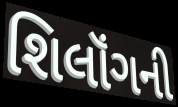
શિલૉંગની